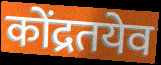
कोंद्रतयेव